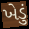
ખેડું